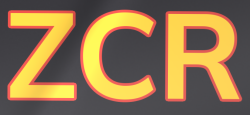
ZCR